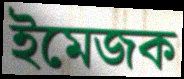
ইমেজক